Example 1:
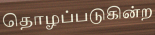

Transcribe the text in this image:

தொழப்படுகின்ற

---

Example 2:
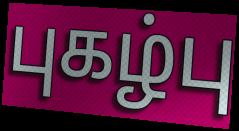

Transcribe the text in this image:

புகழ்பு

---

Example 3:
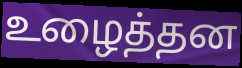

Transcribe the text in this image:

உழைத்தன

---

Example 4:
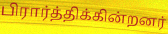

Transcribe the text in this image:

பிரார்த்திக்கின்றனர்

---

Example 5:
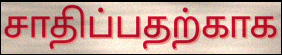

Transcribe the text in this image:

சாதிப்பதற்காக